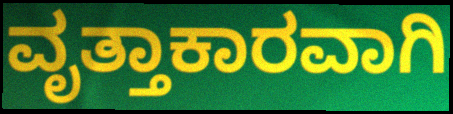
ವೃತ್ತಾಕಾರವಾಗಿ